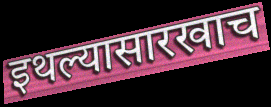
इथल्यासारखाच